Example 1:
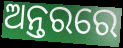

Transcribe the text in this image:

ଅନ୍ତରରେ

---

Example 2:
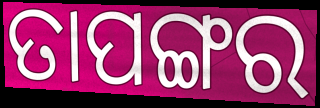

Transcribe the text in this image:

ତାପଙ୍ଗର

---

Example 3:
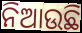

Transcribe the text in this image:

ନିଆଉଛି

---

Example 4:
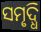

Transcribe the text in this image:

ସମୃଦ୍ଧି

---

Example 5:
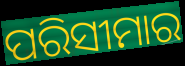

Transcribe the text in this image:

ପରିସୀମାର